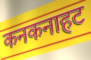
कनकनाहट